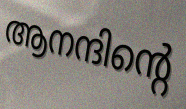
ആനന്ദിന്റെ